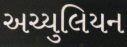
અચ્યુલિયન